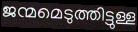
ജന്മമെടുത്തിട്ടുള്ള